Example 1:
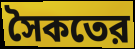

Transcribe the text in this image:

সৈকতের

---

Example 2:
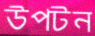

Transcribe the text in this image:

উপটন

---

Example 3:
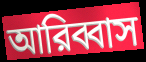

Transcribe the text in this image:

আরিব্বাস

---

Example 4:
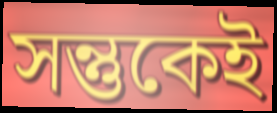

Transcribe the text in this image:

সন্তুকেই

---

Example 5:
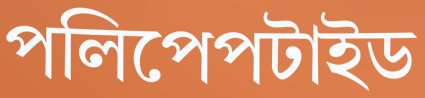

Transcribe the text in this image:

পলিপেপটাইড